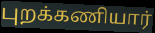
புறக்கணியார்